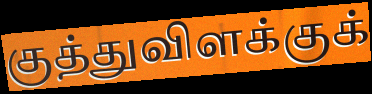
குத்துவிளக்குக்